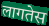
लागतेस